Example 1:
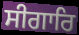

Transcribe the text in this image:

ਸੀਗਾਰਿ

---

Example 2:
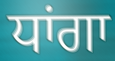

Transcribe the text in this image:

ਧਾਂਗਾ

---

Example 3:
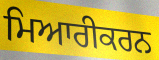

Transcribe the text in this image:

ਮਿਆਰੀਕਰਨ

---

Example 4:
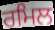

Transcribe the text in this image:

ਰਮਿਲ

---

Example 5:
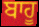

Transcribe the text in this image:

ਬਾਹੂ